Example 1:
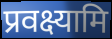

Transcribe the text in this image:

प्रवक्ष्यामि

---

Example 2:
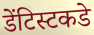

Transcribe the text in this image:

डेंटिस्टकडे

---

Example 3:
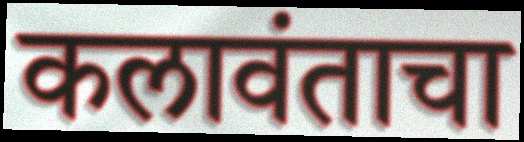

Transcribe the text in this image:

कलावंताचा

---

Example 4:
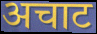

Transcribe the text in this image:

अचाट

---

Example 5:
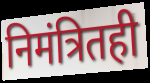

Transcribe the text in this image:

निमंत्रितही